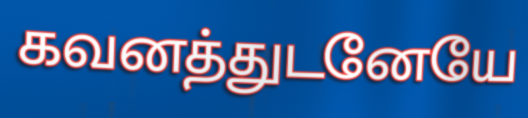
கவனத்துடனேயே